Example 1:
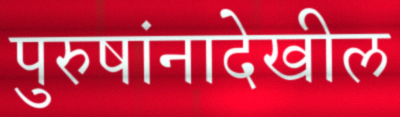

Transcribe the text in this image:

पुरुषांनादेखील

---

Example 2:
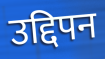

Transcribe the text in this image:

उद्दिपन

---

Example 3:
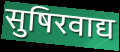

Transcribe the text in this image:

सुषिरवाद्य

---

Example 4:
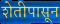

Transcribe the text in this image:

शेतीपासून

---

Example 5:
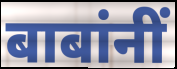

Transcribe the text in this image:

बाबांनीं